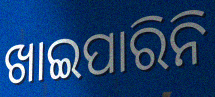
ଖାଇପାରିନି